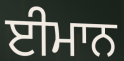
ਈਮਾਨ